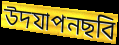
উদযাপনছবি